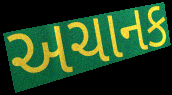
અચાનક